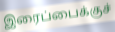
இரைப்பைக்குச்